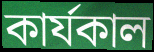
কার্যকাল